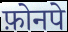
फ़ोनपे